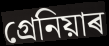
গ্ৰেনিয়াৰ